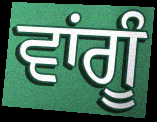
ਵਾਂਗੂੰ